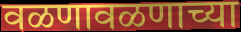
वळणावळणाच्या